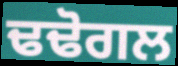
ਢਢੋਗਲ